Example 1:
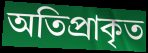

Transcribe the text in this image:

অতিপ্ৰাকৃত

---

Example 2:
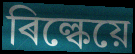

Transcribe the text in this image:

ৰিল্কেয়ে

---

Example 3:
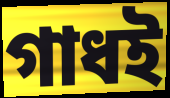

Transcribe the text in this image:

গাধই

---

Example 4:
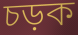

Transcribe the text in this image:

চড়ক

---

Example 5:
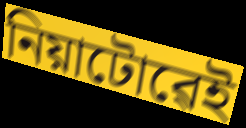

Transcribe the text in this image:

নিয়াটোৱেই